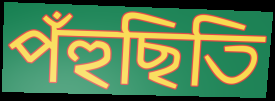
পঁহুছিতি